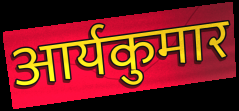
आर्यकुमार